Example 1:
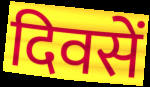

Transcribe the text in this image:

दिवसें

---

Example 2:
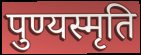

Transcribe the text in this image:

पुण्यस्मृति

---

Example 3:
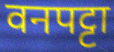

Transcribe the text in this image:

वनपट्टा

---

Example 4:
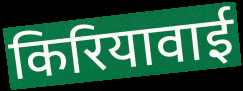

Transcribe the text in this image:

किरियावाई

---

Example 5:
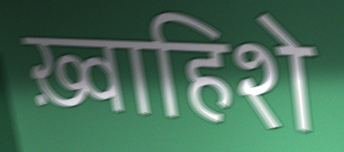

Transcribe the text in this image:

ख़्वाहिशे